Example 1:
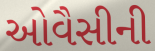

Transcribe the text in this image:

ઓવૈસીની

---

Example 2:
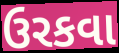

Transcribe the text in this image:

ઉરકવા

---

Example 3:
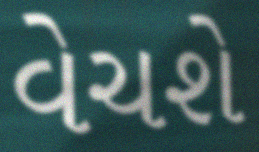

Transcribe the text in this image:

વેચશે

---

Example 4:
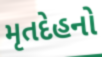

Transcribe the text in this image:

મૃતદેહનો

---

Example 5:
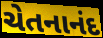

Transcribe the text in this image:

ચેતનાનંદ